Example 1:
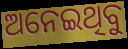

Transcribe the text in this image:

ଅନେଇଥିବୁ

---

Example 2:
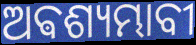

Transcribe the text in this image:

ଅଵଶ୍ୟମ୍ଭାବୀ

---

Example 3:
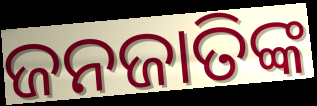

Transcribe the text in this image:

ଜନଜାତିଙ୍କ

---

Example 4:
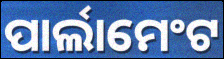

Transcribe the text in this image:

ପାର୍ଲାମେଂଟ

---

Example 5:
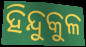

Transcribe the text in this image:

ହିନ୍ଦୁକୁଳ